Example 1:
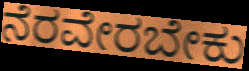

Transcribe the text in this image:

ನೆರವೇರಬೇಕು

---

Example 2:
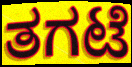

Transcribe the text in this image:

ತಗಟೆ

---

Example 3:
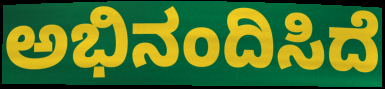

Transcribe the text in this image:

ಅಭಿನಂದಿಸಿದೆ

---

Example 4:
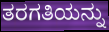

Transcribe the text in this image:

ತರಗತಿಯನ್ನು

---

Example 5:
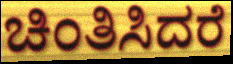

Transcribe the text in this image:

ಚಿಂತಿಸಿದರೆ